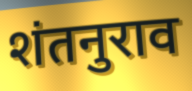
शंतनुराव